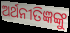
ଅର୍ଥନୀତିଜ୍ଞଙ୍କୁ